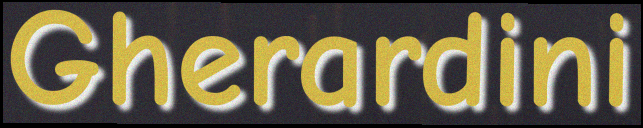
Gherardini